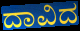
ದಾವಿದ